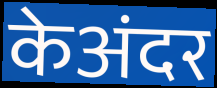
केअंदर